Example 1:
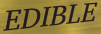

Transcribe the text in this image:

EDIBLE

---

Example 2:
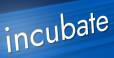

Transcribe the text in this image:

incubate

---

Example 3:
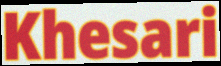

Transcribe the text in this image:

Khesari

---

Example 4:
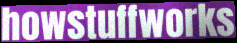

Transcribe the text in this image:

howstuffworks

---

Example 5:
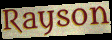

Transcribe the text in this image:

Rayson